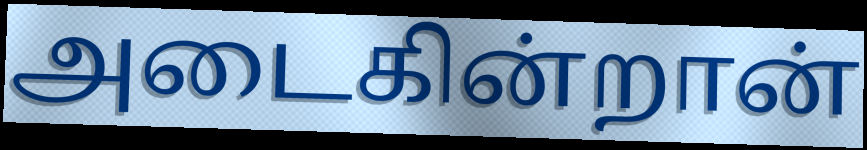
அடைகின்றான்